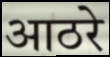
आठरे